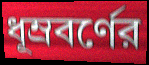
ধূম্রবর্ণের